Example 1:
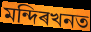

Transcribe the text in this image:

মন্দিৰখনত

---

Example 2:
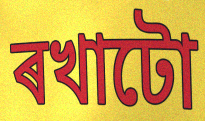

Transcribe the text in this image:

ৰখাটো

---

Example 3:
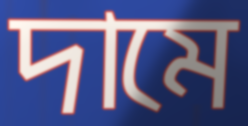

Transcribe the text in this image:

দামে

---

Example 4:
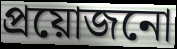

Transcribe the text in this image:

প্ৰয়োজনো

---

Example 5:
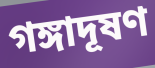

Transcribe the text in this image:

গঙ্গাদূষণ